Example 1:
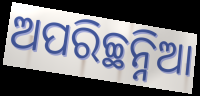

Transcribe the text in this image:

ଅପରିଚ୍ଛନ୍ନିଆ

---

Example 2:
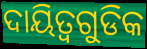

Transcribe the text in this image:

ଦାୟିତ୍ୱଗୁଡିକ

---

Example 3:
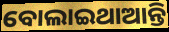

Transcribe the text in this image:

ବୋଲାଇଥାଆନ୍ତି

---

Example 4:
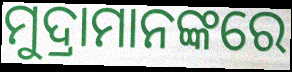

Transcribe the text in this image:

ମୁଦ୍ରାମାନଙ୍କରେ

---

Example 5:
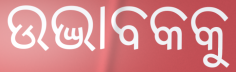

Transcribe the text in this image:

ଉଦ୍ଭାବକକୁ